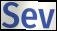
Sev